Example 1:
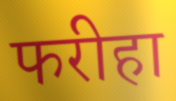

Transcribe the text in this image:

फरीहा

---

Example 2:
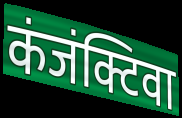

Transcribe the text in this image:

कंजंक्टिवा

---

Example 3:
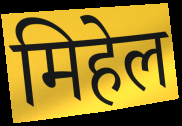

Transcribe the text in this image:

मिहेल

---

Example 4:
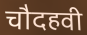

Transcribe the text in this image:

चौदहवी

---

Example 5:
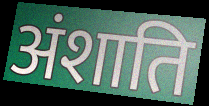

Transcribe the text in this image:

अंशाति